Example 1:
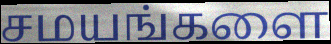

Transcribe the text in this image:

சமயங்களை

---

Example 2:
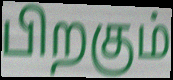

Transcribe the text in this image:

பிறகும்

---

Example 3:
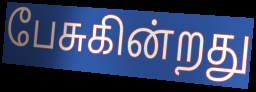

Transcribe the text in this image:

பேசுகின்றது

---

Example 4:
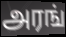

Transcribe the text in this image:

அரங்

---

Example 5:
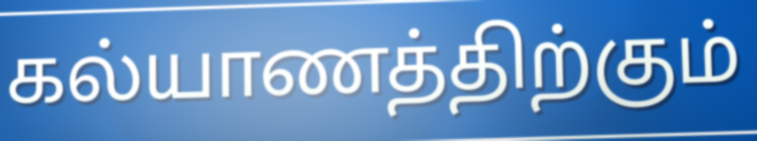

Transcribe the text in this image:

கல்யாணத்திற்கும்